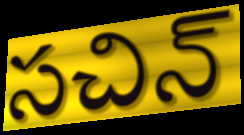
సచిన్